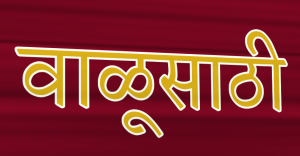
वाळूसाठी